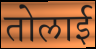
तोलाई